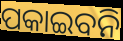
ପକାଇବନି